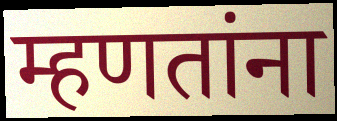
म्हणतांना